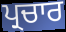
ਪ੍ਰਚਾਰ